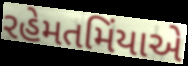
રહેમતમિંયાએ